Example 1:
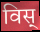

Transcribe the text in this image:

विस्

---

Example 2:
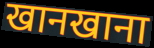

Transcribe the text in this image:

खानखाना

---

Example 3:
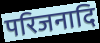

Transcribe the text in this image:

परिजनादि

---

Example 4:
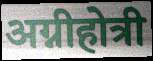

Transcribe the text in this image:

अग्नीहोत्री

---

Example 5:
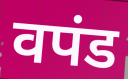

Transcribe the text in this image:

वपंड